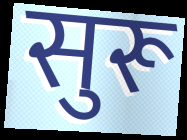
सुरू